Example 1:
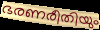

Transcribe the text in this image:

ഭരണരീതിയും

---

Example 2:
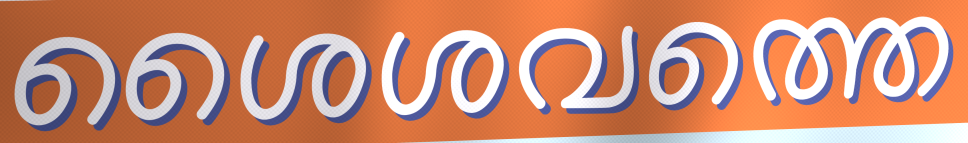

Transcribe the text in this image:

ശൈശവത്തെ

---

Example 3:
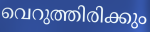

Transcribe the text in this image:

വെറുത്തിരിക്കും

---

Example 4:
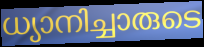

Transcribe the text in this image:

ധ്യാനിച്ചാരുടെ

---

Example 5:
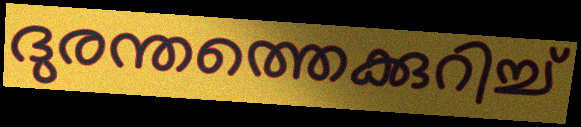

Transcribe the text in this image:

ദുരന്തത്തെക്കുറിച്ച്